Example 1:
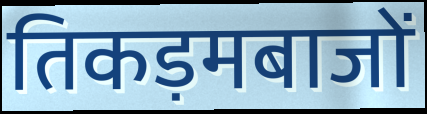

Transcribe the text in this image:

तिकड़मबाजों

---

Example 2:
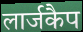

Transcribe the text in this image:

लार्जकैप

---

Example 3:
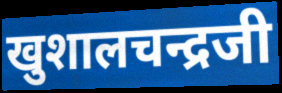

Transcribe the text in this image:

खुशालचन्द्रजी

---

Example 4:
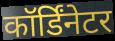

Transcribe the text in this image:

कॉर्डिंनेटर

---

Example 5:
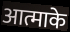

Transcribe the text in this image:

आत्माके